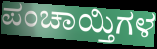
ಪಂಚಾಯ್ತಿಗಳ